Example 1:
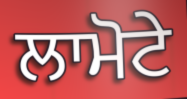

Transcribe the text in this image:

ਲਾਮੋਟੇ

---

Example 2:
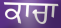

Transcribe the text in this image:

ਕਾਚਾ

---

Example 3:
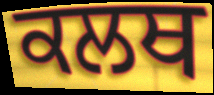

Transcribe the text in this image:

ਕਲਥ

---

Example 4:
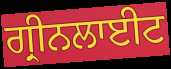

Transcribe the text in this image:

ਗ੍ਰੀਨਲਾਈਟ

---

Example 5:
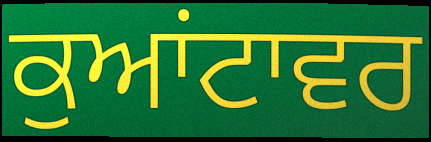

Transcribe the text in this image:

ਕੁਆਂਟਾਵਰ